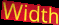
Width